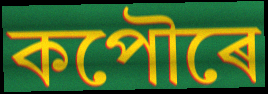
কপৌৰে